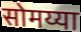
सोमय्या